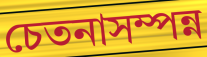
চেতনাসম্পন্ন